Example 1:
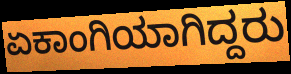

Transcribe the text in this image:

ಏಕಾಂಗಿಯಾಗಿದ್ದರು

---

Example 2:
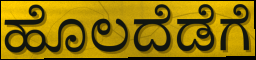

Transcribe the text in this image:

ಹೊಲದೆಡೆಗೆ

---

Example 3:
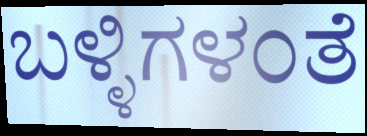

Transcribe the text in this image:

ಬಳ್ಳಿಗಳಂತೆ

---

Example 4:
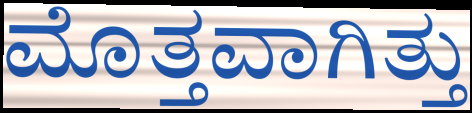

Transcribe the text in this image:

ಮೊತ್ತವಾಗಿತ್ತು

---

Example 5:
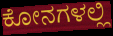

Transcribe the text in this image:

ಕೋನಗಳಲ್ಲಿ